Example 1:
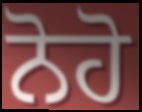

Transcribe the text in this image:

ਨੋਹੋ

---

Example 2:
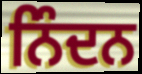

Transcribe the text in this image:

ਨਿੰਦਨ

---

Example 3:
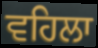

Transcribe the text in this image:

ਵਹਿਲਾ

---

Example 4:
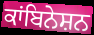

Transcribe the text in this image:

ਕਾਂਬਿਨੇਸ਼ਨ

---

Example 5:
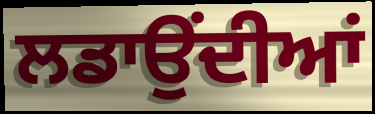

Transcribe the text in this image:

ਲਡਾਉਂਦੀਆਂ